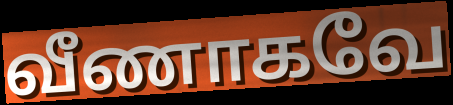
வீணாகவே